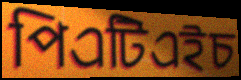
পিএটিএইচ